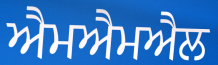
ਐਮਐਮਐਲ